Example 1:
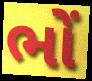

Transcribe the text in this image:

ભોં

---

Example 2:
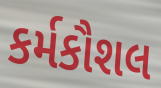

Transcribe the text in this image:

કર્મકૌશલ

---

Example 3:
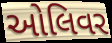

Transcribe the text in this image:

ઓલિવર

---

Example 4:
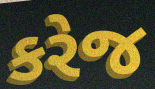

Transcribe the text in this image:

કરેજ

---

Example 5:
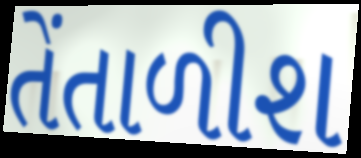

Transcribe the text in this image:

તેંતાળીશ